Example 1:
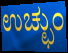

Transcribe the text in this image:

ಉಚ್ಛುಂ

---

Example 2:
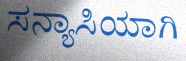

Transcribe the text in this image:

ಸನ್ಯಾಸಿಯಾಗಿ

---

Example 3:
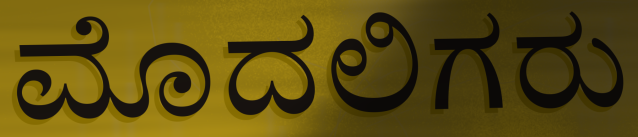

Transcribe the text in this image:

ಮೊದಲಿಗರು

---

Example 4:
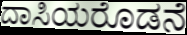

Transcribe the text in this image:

ದಾಸಿಯರೊಡನೆ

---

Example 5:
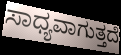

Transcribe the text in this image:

ಸಾಧ್ಯವಾಗುತ್ತದೆ